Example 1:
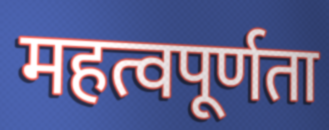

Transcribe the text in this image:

महत्वपूर्णता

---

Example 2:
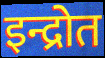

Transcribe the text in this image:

इन्द्रोत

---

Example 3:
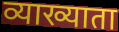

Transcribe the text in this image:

व्याख्याता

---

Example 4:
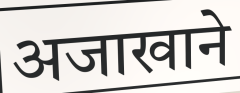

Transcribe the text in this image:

अजाखाने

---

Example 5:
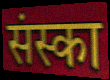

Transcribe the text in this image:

संस्का